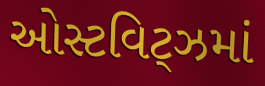
ઓસ્ટવિટ્ઝમાં